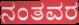
ನಂತವರ